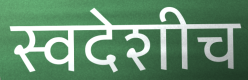
स्वदेशीच